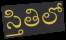
స్తితిలో